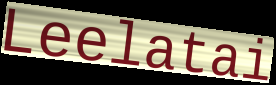
Leelatai